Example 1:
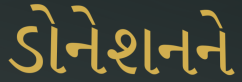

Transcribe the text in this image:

ડોનેશનને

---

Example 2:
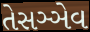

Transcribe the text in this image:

તેસઞ્ઞેવ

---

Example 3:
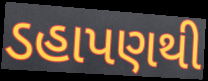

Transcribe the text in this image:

ડહાપણથી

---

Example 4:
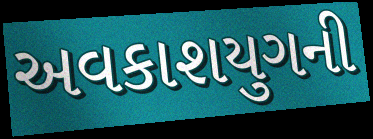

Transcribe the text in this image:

અવકાશયુગની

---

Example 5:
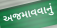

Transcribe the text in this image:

અજમાવવાનું